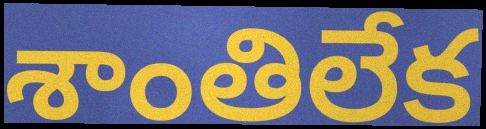
శాంతిలేక